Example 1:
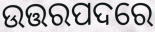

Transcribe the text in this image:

ଉତ୍ତରପଦରେ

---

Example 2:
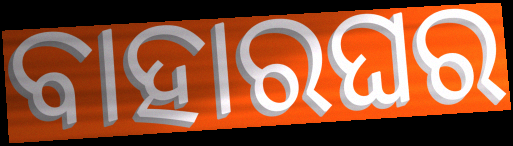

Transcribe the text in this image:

ବାହାରଘର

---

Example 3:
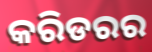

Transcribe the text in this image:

କରିଡରର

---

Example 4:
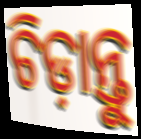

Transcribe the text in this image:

ଚିଡ଼ାନ୍ତୁ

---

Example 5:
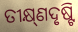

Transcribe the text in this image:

ତୀକ୍ଷ୍‌ଣଦୃଷ୍ଟି